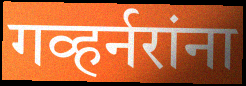
गव्हर्नरांना